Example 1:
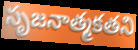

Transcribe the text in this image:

సృజనాత్మకతని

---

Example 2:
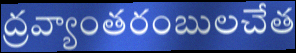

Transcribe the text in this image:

ద్రవ్యాంతరంబులచేత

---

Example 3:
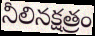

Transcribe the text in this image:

నీలినక్షత్రం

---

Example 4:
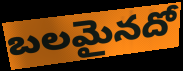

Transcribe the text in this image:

బలమైనదో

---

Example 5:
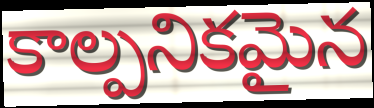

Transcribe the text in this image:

కాల్పనికమైన